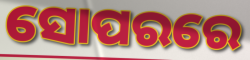
ସୋପରରେ